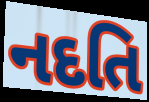
નદતિ